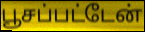
பூசப்பட்டேன்